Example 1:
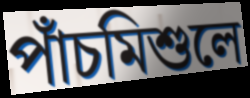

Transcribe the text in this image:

পাঁচমিশুলে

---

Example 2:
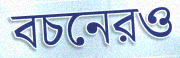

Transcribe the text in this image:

বচনেরও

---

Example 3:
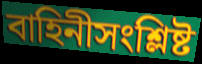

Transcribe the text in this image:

বাহিনীসংশ্লিষ্ট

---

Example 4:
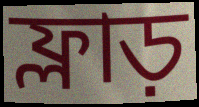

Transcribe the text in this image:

ফ্লাড়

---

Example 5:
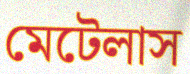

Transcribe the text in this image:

মেটেলাস